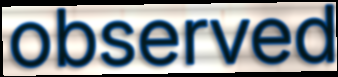
observed